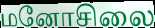
மனோசிலை